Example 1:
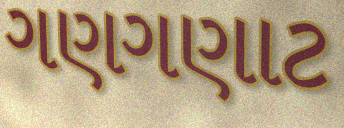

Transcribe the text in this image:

ગણગણાટ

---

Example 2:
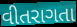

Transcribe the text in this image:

વીતરાગતા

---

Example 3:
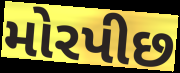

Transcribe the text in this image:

મોરપીછ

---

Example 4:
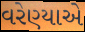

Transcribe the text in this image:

વરેણ્યાએ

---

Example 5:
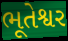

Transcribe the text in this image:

ભૂતેશ્વર